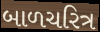
બાળચરિત્ર